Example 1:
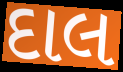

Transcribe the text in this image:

દાલ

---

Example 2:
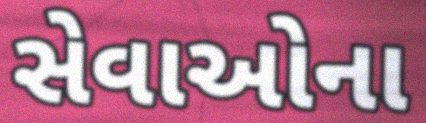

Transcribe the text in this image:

સેવાઓના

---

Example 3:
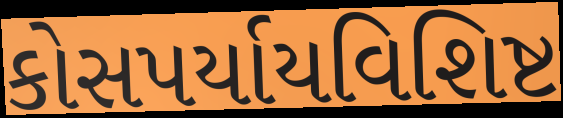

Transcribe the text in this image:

કોસપર્યાયવિશિષ્ટ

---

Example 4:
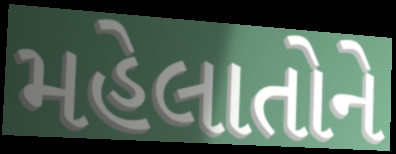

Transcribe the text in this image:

મહેલાતોને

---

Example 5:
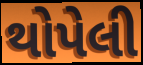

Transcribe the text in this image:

થોપેલી